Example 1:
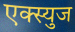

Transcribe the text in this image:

एक्स्युज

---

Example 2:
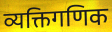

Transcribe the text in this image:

व्यक्तिगणिक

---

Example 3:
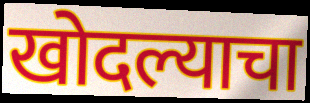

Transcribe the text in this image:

खोदल्याचा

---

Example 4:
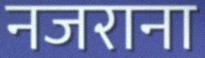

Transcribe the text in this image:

नजराना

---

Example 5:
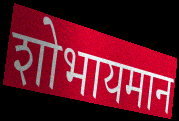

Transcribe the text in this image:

शोभायमान